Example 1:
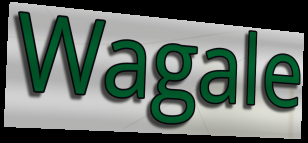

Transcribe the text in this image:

Wagale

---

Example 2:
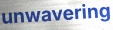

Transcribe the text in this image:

unwavering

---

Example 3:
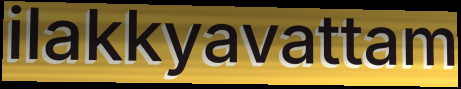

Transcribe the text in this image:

ilakkyavattam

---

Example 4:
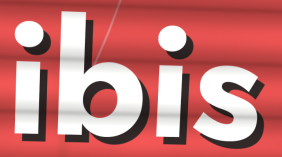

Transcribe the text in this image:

ibis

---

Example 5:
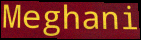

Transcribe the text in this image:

Meghani